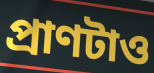
প্রাণটাও